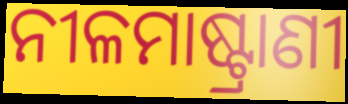
ନୀଳମାଷ୍ଟ୍ରାଣୀ